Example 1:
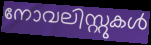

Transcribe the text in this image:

നോവലിസ്റ്റുകൾ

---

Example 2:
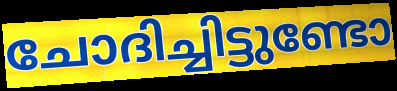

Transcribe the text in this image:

ചോദിച്ചിട്ടുണ്ടോ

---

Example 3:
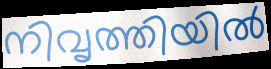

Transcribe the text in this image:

നിവൃത്തിയിൽ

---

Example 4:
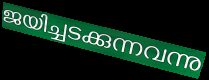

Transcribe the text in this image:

ജയിച്ചടക്കുന്നവന്നു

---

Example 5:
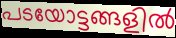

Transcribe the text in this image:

പടയോട്ടങ്ങളിൽ